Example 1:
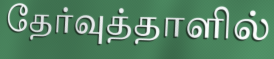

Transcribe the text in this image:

தேர்வுத்தாளில்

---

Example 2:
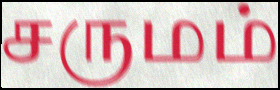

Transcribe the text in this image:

சருமம்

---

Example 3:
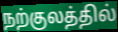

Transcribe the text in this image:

நற்குலத்தில்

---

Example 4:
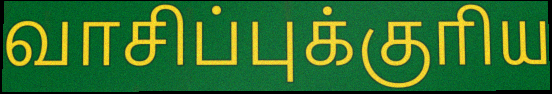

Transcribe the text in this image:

வாசிப்புக்குரிய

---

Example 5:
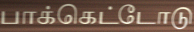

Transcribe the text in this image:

பாக்கெட்டோடு